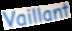
Vaillant